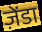
ज़ेंडा